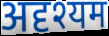
अदृश्यम